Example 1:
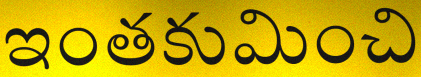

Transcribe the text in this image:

ఇంతకుమించి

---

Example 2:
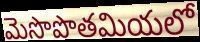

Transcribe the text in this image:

మెసొపొతమియలో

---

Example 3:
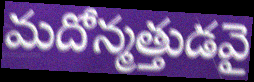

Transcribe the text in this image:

మదోన్మత్తుడవై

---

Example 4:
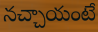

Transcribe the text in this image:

నచ్చాయంటే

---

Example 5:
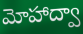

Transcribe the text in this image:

మోహాద్వా